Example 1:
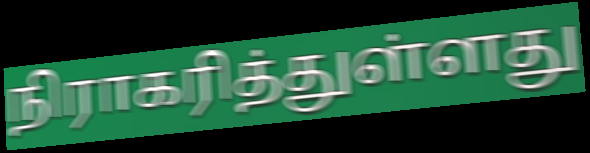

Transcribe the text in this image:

நிராகரித்துள்ளது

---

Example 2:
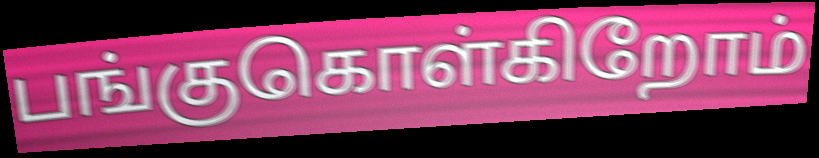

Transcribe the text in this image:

பங்குகொள்கிறோம்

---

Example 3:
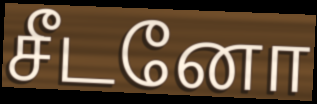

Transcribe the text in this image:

சீடனோ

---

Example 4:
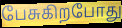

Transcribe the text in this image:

பேசுகிறபோது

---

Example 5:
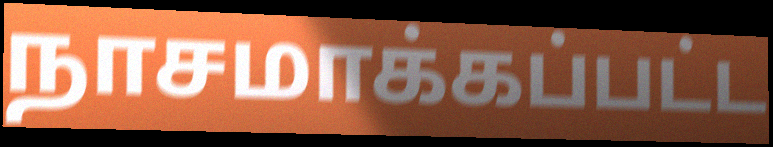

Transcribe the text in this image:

நாசமாக்கப்பட்ட